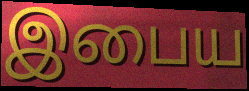
இபைய